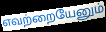
எவற்றையேனும்